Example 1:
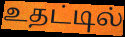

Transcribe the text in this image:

உதட்டில்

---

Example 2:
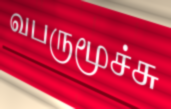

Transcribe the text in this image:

வபருமூச்சு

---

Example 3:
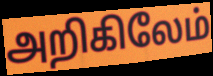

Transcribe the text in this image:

அறிகிலேம்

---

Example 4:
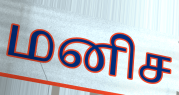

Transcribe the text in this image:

மனிச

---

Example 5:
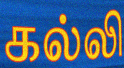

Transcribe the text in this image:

கல்லி